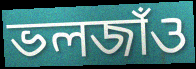
ভলজাঁও